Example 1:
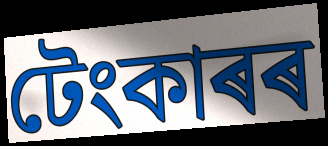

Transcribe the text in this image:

টেংকাৰৰ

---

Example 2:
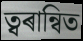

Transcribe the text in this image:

ত্বৰান্বিত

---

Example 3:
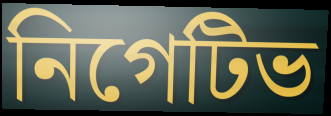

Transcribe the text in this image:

নিগেটিভ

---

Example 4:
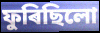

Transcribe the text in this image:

ফুৰিছিলো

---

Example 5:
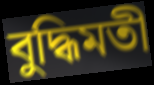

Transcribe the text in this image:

বুদ্ধিমতী